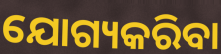
ଯୋଗ୍ୟକରିବା